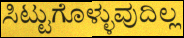
ಸಿಟ್ಟುಗೊಳ್ಳುವುದಿಲ್ಲ